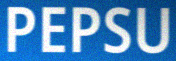
PEPSU